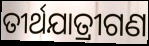
ତୀର୍ଥଯାତ୍ରୀଗଣ